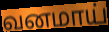
வனமாய்